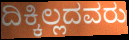
ದಿಕ್ಕಿಲ್ಲದವರು